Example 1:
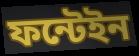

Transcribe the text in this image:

ফন্টেইন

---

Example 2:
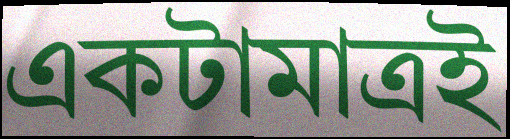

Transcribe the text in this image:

একটামাত্রই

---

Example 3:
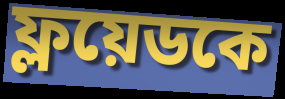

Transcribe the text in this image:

ফ্লয়েডকে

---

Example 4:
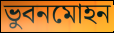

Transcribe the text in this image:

ভুবনমোহন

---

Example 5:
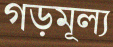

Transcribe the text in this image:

গড়মূল্য